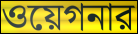
ওয়েগনার